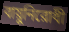
বায়ুনিরোধী